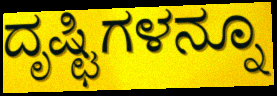
ದೃಷ್ಟಿಗಳನ್ನೂ